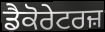
ਡੈਕੋਰੇਟਰਜ਼